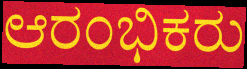
ಆರಂಭಿಕರು